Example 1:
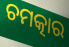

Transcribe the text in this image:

ଚମତ୍କାର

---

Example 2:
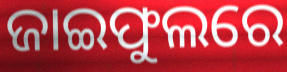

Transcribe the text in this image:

ଜାଇଫୁଲରେ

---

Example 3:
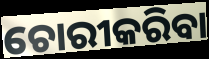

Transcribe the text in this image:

ଚୋରୀକରିବା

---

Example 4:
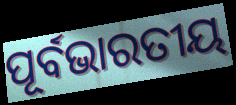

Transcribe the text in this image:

ପୂର୍ବଭାରତୀୟ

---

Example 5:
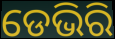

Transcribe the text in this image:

ଡେଭିରି